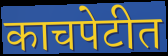
काचपेटीत